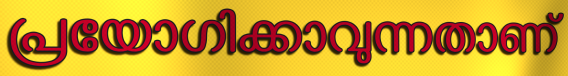
പ്രയോഗിക്കാവുന്നതാണ്